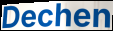
Dechen